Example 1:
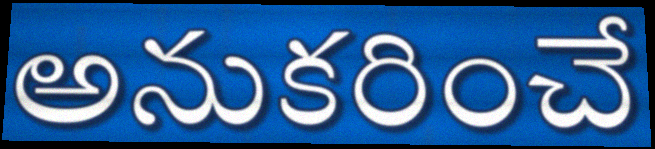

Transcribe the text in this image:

అనుకరించే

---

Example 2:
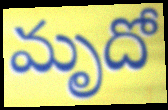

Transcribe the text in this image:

మృదో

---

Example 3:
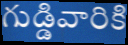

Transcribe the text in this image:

గుడ్డివారికి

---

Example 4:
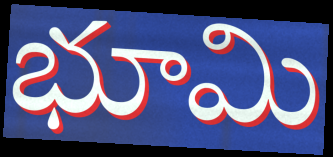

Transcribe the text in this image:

భూమి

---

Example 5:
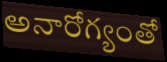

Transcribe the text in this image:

అనారోగ్యంతో